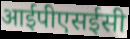
आईपीएसईसी